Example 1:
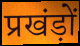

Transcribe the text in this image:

प्रखंड़ों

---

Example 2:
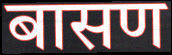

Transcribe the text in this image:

बासण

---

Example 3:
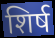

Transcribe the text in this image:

शिर्ष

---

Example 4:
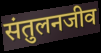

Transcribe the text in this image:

संतुलनजीव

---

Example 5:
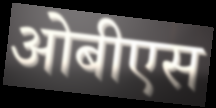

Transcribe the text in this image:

ओबीएस